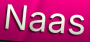
Naas